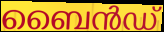
ബൈൻഡ്